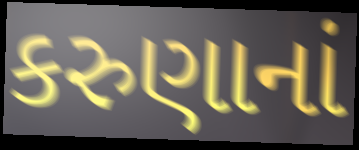
કરુણાનાં